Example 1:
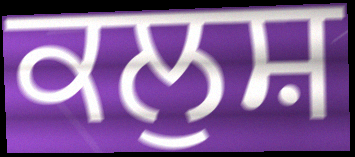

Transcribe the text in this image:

ਕਲੁਸ਼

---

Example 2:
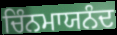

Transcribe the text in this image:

ਚਿੰਨਮਾਯਨੰਦ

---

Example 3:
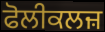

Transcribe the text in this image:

ਫੋਲੀਕਲਜ਼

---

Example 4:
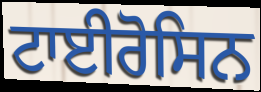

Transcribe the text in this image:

ਟਾਈਰੋਸਿਨ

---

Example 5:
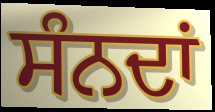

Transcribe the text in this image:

ਸੰਨਦਾਂ